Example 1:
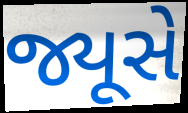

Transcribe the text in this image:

જ્યૂસે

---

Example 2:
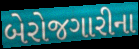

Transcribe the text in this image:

બેરોજગારીના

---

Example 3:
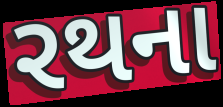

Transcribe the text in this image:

રથના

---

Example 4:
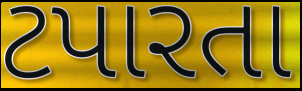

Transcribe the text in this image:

ટપારતા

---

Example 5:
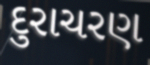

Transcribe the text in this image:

દુરાચરણ